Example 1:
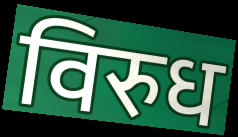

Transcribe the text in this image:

विरुध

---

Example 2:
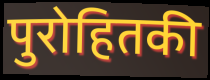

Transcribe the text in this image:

पुरोहितकी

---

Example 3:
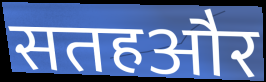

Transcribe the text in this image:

सतहऔर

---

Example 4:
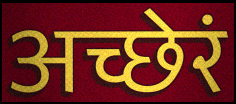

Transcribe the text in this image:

अच्छेरं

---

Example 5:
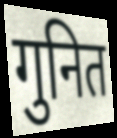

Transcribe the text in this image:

गुनित